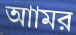
আামর